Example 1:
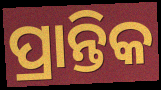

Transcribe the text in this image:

ପ୍ରାନ୍ତିକ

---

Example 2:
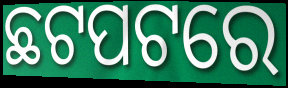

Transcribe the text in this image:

ଛଟପଟରେ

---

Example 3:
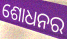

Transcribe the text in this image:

ଶୋଧନର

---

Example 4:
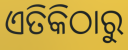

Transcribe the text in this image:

ଏତିକିଠାରୁ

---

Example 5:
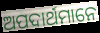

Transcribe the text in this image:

ଅପଦାର୍ଥମାନେ